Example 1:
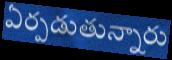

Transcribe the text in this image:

ఏర్పడుతున్నారు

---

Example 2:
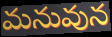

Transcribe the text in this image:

మనువున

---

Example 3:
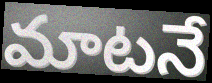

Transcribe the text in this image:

మాటనే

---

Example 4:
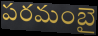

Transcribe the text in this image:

పరమంబై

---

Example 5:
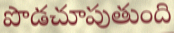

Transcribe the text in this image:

పొడచూపుతుంది